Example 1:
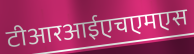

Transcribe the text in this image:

टीआरआईएचएमएस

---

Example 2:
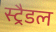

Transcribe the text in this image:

स्ट्रैडल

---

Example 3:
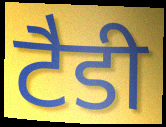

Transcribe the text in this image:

टैडी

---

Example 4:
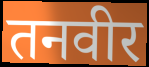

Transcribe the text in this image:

तनवीर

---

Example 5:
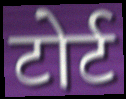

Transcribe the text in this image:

टोर्ट